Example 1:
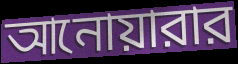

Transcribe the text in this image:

আনোয়ারার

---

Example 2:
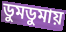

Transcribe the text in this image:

ডুমডুমায়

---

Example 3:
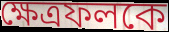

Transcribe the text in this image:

ক্ষেত্রফলকে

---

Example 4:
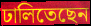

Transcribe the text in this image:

ঢালিতেছেন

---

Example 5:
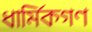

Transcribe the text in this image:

ধার্মিকগণ